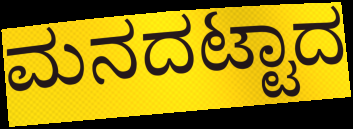
ಮನದಟ್ಟಾದ